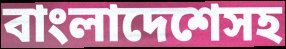
বাংলাদেশেসহ